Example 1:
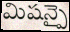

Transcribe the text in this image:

మిషన్పై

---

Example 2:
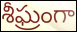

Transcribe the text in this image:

శీఘ్రంగా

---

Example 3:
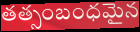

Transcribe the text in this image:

తత్సంబంధమైన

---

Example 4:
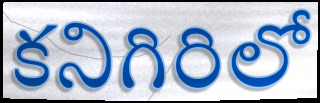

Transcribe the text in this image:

కనిగిరిలో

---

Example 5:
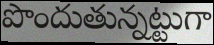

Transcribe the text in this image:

పొందుతున్నట్టుగా